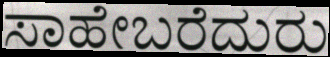
ಸಾಹೇಬರೆದುರು